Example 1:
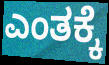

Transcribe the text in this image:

ಎಂತಕ್ಕೆ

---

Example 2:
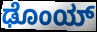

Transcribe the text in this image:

ಢೊಂಯ್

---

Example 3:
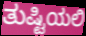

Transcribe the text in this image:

ತುಷ್ಟಿಯಲಿ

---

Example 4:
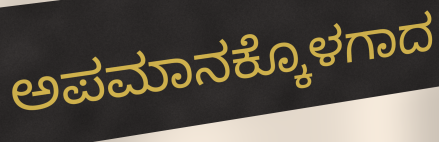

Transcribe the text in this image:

ಅಪಮಾನಕ್ಕೊಳಗಾದ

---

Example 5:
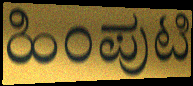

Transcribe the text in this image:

ಹಿಂಪುಟಿ